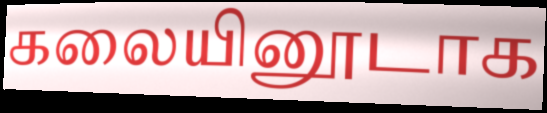
கலையினூடாக